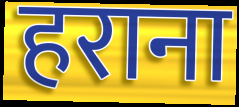
हराना